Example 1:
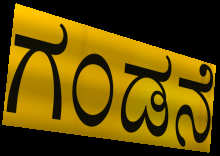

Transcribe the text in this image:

ಗಂಡನೆ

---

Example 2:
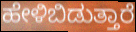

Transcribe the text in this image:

ಹೇಳಿಬಿಡುತ್ತಾರೆ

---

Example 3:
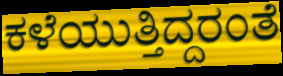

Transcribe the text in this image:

ಕಳೆಯುತ್ತಿದ್ದರಂತೆ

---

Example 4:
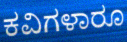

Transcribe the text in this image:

ಕವಿಗಳಾರೂ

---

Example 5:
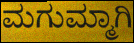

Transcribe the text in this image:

ಮಗುಮ್ಮಾಗಿ